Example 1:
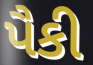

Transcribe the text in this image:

પૈકી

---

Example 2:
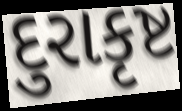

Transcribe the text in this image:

દુરાકૃષ્ટ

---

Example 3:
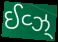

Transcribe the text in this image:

ઈવ્ઝ્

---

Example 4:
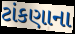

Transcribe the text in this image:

ટાંકણાના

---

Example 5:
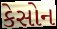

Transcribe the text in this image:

કેસોન